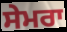
ਸੇਮਰਾ